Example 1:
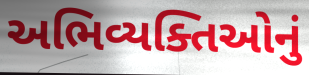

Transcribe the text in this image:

અભિવ્યક્તિઓનું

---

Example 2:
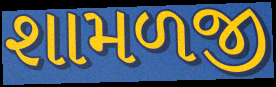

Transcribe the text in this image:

શામળજી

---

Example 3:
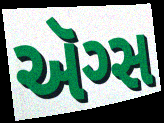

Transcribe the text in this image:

ઍગ્સ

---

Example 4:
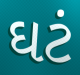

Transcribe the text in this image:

ઘટં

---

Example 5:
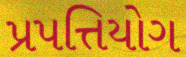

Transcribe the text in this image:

પ્રપત્તિયોગ